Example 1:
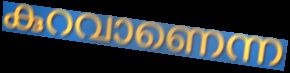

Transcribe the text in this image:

കുറവാണെന്ന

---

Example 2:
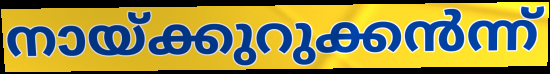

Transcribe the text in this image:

നായ്ക്കുറുക്കൻന്ന്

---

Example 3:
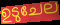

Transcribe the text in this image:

ഉടുചേല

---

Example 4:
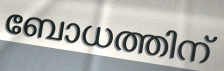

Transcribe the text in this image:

ബോധത്തിന്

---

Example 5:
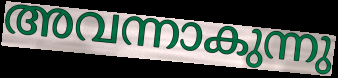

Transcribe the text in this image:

അവന്നാകുന്നു